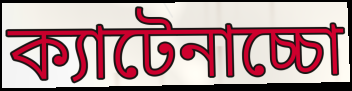
ক্যাটেনাচ্চো